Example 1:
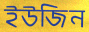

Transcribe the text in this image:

ইউজিন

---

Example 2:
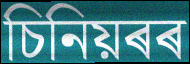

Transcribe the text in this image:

চিনিয়ৰৰ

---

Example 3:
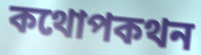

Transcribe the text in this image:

কথোপকথন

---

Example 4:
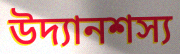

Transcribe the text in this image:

উদ্যানশস্য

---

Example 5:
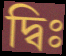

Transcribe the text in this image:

দ্বিঃ